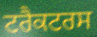
ਟਰੈਕਟਰਸ